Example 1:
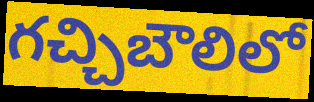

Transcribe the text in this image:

గచ్చిబౌలిలో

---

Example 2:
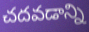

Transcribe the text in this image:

చదవడాన్ని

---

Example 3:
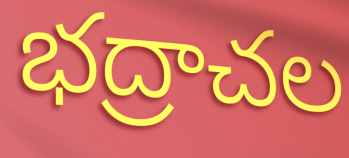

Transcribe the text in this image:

భద్రాచల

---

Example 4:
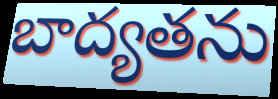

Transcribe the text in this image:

బాద్యతను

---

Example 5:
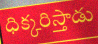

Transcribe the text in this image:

ధిక్కరిస్తాడు